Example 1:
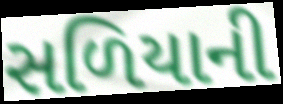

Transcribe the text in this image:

સળિયાની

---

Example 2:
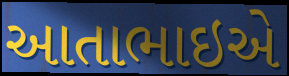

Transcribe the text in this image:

આતાભાઇએ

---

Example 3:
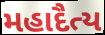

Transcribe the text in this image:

મહાદૈત્ય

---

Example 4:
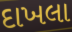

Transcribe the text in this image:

દાખલા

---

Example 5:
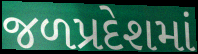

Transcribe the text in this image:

જળપ્રદેશમાં